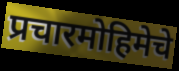
प्रचारमोहिमेचे